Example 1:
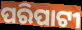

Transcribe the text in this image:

ପରିପାଟୀ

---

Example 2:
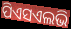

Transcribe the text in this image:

ପିଏସଏଲଭି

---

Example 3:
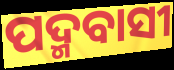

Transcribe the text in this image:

ପଦ୍ମବାସୀ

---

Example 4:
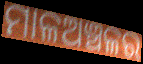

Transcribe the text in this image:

ମାଳଅଞ୍ଚଳର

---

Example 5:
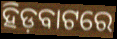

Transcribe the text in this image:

ହିଡ଼ବାଟରେ